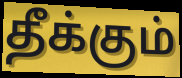
தீக்கும்